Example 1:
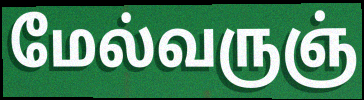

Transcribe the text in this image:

மேல்வருஞ்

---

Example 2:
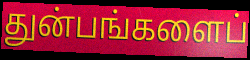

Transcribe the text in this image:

துன்பங்களைப்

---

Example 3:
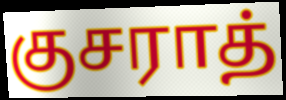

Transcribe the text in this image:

குசராத்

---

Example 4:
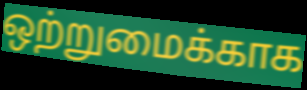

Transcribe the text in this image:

ஒற்றுமைக்காக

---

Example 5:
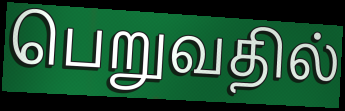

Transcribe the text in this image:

பெறுவதில்